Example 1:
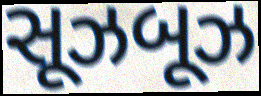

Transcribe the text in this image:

સૂઝબૂઝ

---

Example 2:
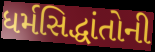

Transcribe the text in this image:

ધર્મસિદ્ધાંતોની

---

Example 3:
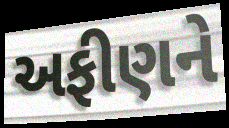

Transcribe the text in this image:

અફીણને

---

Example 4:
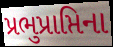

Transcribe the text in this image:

પ્રભુપ્રાપ્તિના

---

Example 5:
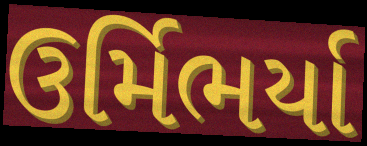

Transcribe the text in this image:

ઉર્મિભર્યા